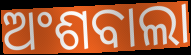
ଅଂଶବାଲା